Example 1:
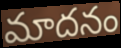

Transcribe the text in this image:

మాదనం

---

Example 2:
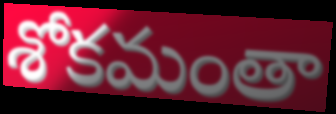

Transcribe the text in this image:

శోకమంతా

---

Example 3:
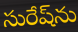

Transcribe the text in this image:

సురేష్‌ను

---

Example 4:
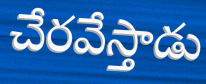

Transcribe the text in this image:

చేరవేస్తాడు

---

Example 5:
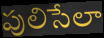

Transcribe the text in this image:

పులిసేలా